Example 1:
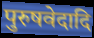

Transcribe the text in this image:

पुरुषवेदादि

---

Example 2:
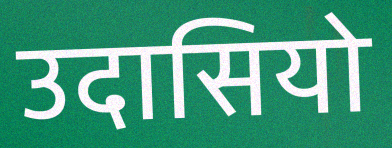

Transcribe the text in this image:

उदासियो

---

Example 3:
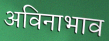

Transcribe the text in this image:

अविनाभाव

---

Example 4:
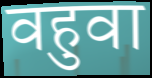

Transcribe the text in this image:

वहुवा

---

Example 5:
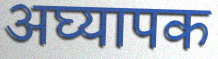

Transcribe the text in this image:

अघ्यापक